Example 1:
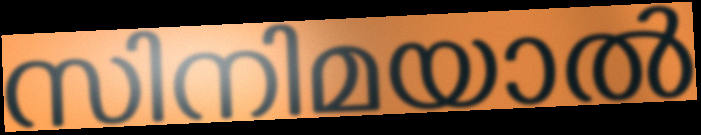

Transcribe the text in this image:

സിനിമയാൽ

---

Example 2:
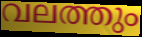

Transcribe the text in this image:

വലത്തും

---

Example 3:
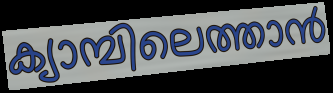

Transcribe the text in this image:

ക്യാമ്പിലെത്താൻ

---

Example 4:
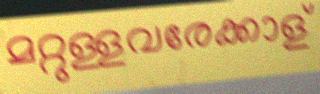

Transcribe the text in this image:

മറ്റുള്ളവരേക്കാള്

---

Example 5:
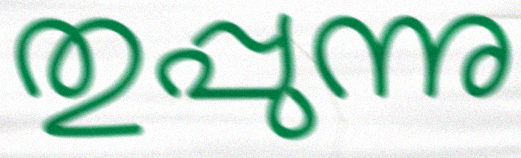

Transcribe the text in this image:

തുപ്പുന്നു